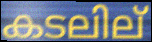
കടലില്